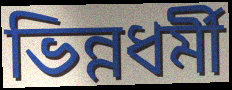
ভিন্নধৰ্মী